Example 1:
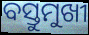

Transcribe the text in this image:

ବସ୍ତୁମୁଖୀ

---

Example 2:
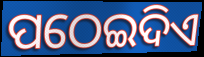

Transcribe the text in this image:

ପଠେଇଦିଏ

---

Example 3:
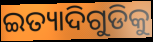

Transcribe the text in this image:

ଇତ୍ୟାଦିଗୁଡିକୁ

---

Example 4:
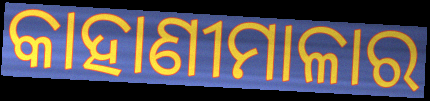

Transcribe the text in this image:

କାହାଣୀମାଳାର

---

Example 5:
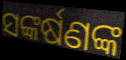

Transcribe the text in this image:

ସଙ୍କର୍ଷଣଙ୍କ